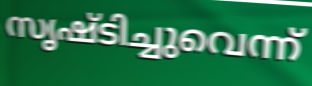
സൃഷ്ടിച്ചുവെന്ന്